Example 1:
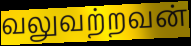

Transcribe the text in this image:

வலுவற்றவன்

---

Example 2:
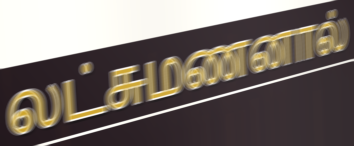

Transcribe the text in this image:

லட்சுமணனால்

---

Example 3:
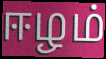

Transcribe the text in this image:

ஈழம்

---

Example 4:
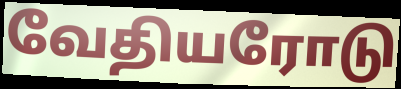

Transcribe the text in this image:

வேதியரோடு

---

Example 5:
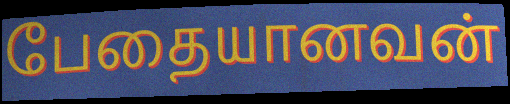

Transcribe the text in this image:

பேதையானவன்